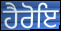
ਹੈਰੋਇ